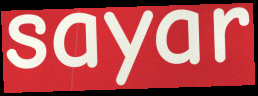
sayar